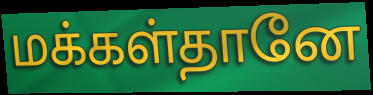
மக்கள்தானே